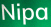
Nipa